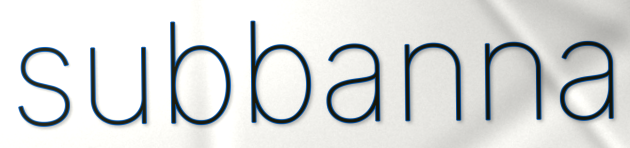
subbanna